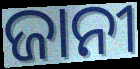
ଜାନୀ